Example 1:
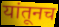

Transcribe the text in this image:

यांतूनच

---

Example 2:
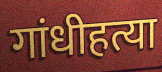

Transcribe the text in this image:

गांधीहत्या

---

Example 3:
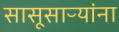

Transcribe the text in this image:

सासूसाऱ्यांना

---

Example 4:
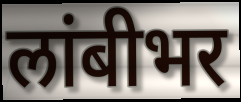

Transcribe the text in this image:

लांबीभर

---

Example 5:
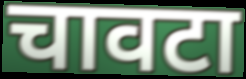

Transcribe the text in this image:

चावटा